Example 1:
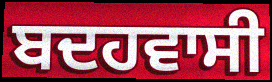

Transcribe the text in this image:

ਬਦਹਵਾਸੀ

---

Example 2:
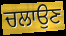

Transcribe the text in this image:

ਚਲਾਉਣ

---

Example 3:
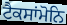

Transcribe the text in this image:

ਟੈਕਸਾਂਮੋਨਿ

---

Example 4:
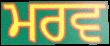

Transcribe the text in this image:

ਮਰਵ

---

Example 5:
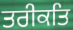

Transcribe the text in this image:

ਤਰੀਕਤਿ